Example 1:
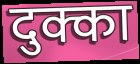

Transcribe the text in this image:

दुक्का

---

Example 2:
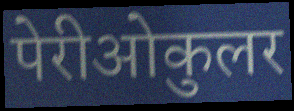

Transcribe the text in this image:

पेरीओकुलर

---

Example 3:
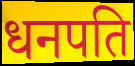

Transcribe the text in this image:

धनपति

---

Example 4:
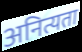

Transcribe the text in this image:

अनित्यता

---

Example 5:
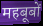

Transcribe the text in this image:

महबूबों